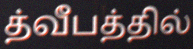
த்வீபத்தில்